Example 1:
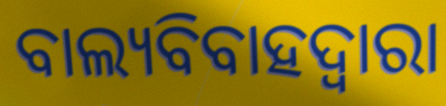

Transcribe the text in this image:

ବାଲ୍ୟବିବାହଦ୍ୱାରା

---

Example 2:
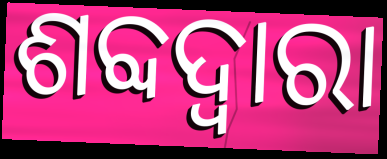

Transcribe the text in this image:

ଶବ୍ଦଦ୍ୱାରା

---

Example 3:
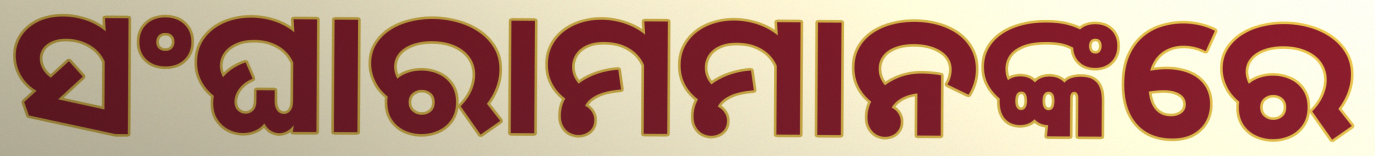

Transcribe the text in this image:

ସଂଘାରାମମାନଙ୍କରେ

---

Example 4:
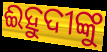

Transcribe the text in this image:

ଈହୁଦୀଙ୍କୁ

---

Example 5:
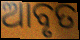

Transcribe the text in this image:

ଆବୃତ